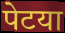
पेटया